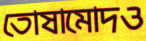
তোষামোদও